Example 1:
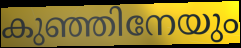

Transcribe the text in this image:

കുഞ്ഞിനേയും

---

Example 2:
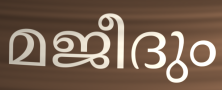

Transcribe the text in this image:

മജീദും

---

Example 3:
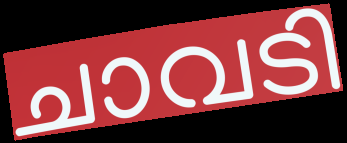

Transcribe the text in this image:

ചാവടി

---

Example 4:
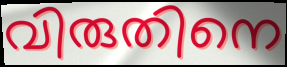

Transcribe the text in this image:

വിരുതിനെ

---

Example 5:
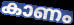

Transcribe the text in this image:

കാണം